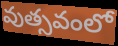
వుత్సవంలో